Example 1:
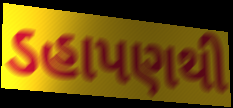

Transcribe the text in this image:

ડહાપણથી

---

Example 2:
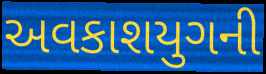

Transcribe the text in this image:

અવકાશયુગની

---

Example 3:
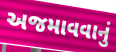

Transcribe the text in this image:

અજમાવવાનું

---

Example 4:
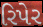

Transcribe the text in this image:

રિપેર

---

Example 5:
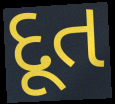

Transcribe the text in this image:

દૂત